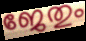
ജേതും